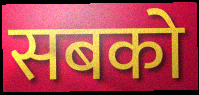
सबको